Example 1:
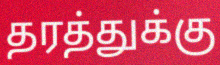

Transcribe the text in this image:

தரத்துக்கு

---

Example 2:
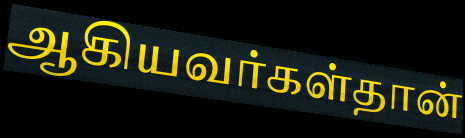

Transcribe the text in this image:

ஆகியவர்கள்தான்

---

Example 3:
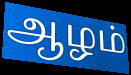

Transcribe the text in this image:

ஆழம்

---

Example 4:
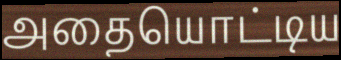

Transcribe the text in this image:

அதையொட்டிய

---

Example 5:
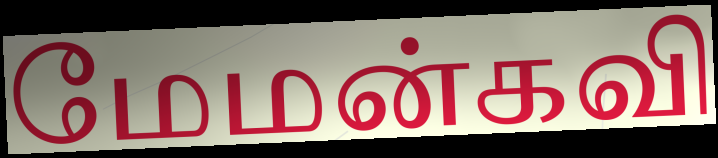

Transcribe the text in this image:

மேமன்கவி